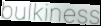
bulkiness